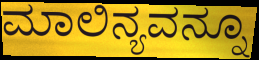
ಮಾಲಿನ್ಯವನ್ನೂ